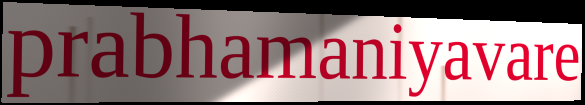
prabhamaniyavare